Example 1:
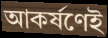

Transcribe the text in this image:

আকর্ষণেই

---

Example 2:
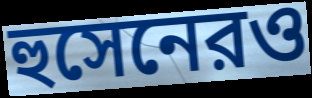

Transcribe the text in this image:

হুসেনেরও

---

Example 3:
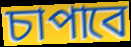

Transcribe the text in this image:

চাপাবে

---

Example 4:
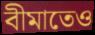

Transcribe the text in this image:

বীমাতেও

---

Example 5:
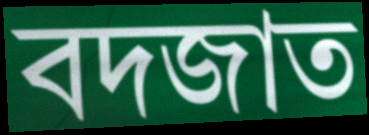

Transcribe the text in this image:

বদজাত